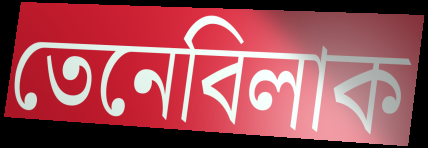
তেনেবিলাক